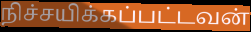
நிச்சயிக்கப்பட்டவன்